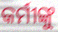
କର୍ମୀଙ୍କୁ